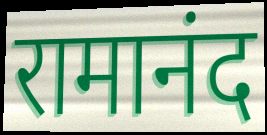
रामानंद